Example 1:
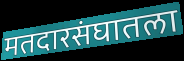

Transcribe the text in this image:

मतदारसंघातला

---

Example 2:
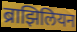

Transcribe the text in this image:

ब्राझिलियन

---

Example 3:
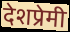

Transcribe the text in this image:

देशप्रेमी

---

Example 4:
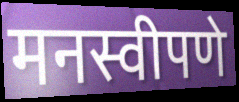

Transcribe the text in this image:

मनस्वीपणे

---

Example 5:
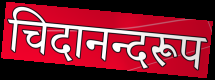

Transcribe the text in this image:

चिदानन्दरूप